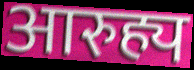
आरुह्य